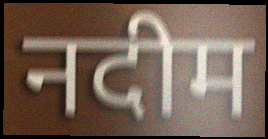
नदीम